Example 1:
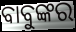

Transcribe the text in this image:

ବାବୁଙ୍କର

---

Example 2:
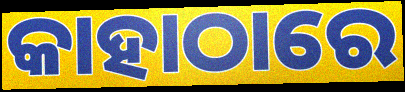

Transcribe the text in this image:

କାହାଠାରେ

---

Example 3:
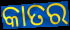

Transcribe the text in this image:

କାତର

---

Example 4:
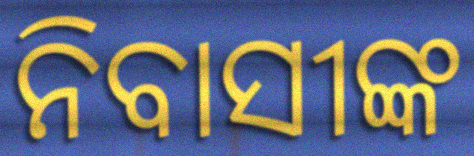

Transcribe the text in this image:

ନିବାସୀଙ୍କ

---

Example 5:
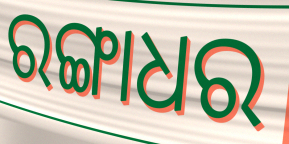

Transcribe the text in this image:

ରଙ୍ଗାଧର